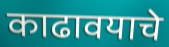
काढावयाचे